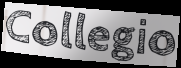
Collegio